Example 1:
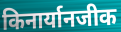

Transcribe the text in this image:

किनार्यानजीक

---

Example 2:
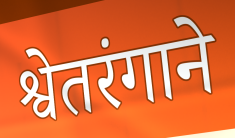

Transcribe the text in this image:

श्वेतरंगाने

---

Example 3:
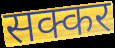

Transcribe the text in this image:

सक्कर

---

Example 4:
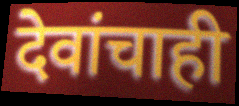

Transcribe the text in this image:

देवांचाही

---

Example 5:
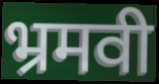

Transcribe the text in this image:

भ्रमवी